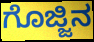
ಗೊಜ್ಜಿನ